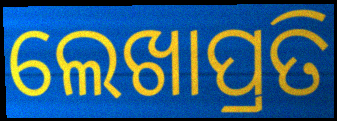
ଲେଖାପ୍ରତି